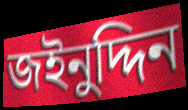
জইনুদ্দিন